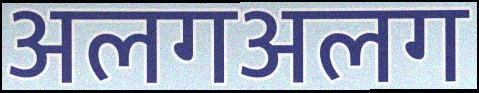
अलगअलग